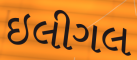
ઇલીગલ